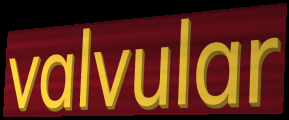
valvular